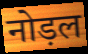
नोड़ल